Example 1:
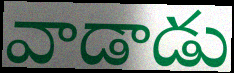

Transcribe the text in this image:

వాడాడు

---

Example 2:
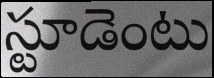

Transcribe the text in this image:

స్టూడెంటు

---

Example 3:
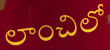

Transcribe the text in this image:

లాంచిలో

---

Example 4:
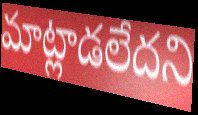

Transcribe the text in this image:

మాట్లాడలేదని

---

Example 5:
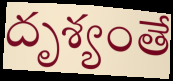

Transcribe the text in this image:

దృశ్యంతే